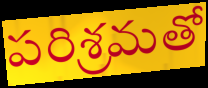
పరిశ్రమతో